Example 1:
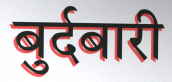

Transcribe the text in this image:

बुर्दबारी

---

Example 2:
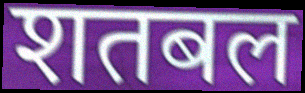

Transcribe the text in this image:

शतबल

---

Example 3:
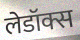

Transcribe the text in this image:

लेडॉक्स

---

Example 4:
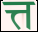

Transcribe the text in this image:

त्त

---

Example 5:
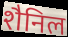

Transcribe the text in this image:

शैनिल